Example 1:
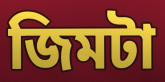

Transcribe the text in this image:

জিমটা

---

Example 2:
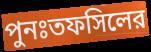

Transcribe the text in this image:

পুনঃতফসিলের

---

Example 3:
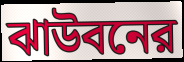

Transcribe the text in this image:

ঝাউবনের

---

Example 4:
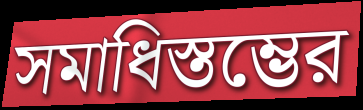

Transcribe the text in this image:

সমাধিস্তম্ভের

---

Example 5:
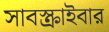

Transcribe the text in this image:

সাবস্ক্রাইবার